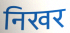
निखर